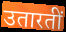
उतारतीं